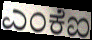
ಎಂಕೆಐ